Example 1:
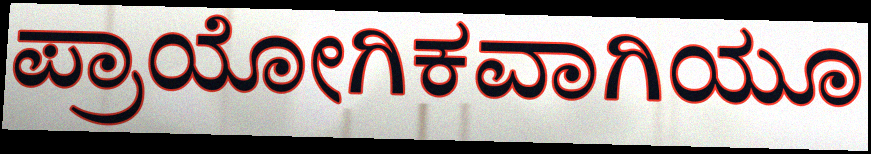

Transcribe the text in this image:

ಪ್ರಾಯೋಗಿಕವಾಗಿಯೂ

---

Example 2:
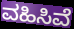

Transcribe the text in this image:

ವಹಿಸಿವೆ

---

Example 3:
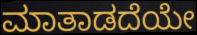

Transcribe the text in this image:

ಮಾತಾಡದೆಯೇ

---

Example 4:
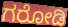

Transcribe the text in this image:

ಗರೋಡಿ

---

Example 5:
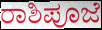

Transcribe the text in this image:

ರಾಶಿಪೂಜೆ